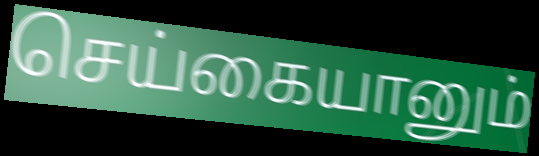
செய்கையானும்